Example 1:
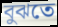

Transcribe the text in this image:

বুঝতে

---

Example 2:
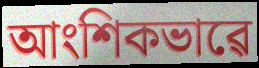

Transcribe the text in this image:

আংশিকভাৱে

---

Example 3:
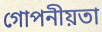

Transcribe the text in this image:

গোপনীয়তা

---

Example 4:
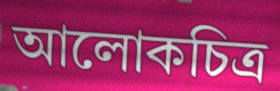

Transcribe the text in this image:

আলোকচিত্ৰ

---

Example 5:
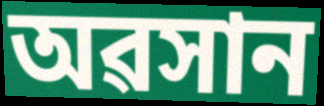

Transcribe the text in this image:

অৱসান